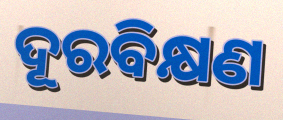
ଦୂରବିକ୍ଷଣ